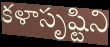
కళాసృష్టిని